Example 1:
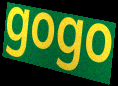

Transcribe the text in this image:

gogo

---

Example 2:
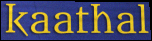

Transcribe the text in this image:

kaathal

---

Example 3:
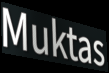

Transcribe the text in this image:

Muktas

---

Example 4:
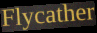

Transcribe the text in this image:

Flycather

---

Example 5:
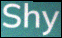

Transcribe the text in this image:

Shy